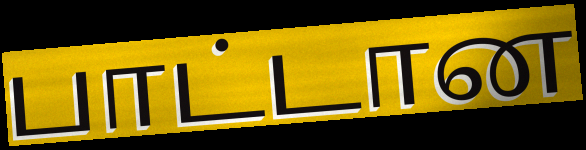
பாட்டான